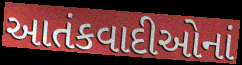
આતંકવાદીઓનાં